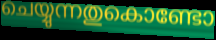
ചെയ്യുന്നതുകൊണ്ടോ